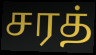
சரத்